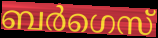
ബർഗെസ്